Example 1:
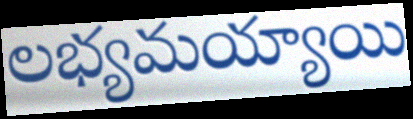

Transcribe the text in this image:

లభ్యమయ్యాయి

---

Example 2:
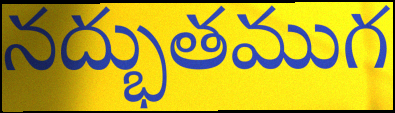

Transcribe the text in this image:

నద్భుతముగ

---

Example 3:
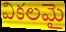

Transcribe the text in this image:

వికలమై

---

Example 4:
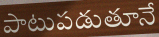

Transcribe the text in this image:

పాటుపడుతూనే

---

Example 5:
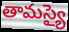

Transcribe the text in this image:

తామస్యై